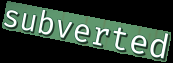
subverted